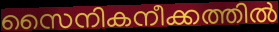
സൈനികനീക്കത്തിൽ